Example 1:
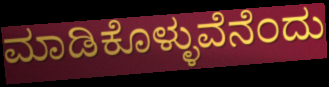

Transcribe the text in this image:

ಮಾಡಿಕೊಳ್ಳುವೆನೆಂದು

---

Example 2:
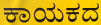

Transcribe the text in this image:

ಕಾಯಕದ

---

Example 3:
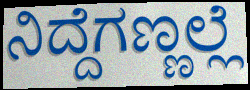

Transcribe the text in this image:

ನಿದ್ದೆಗಣ್ಣಲ್ಲೆ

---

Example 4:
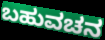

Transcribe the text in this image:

ಬಹುವಚನ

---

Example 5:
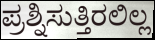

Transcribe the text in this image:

ಪ್ರಶ್ನಿಸುತ್ತಿರಲಿಲ್ಲ